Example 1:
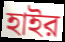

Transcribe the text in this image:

হাইর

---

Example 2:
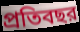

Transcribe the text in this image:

প্রতিবছর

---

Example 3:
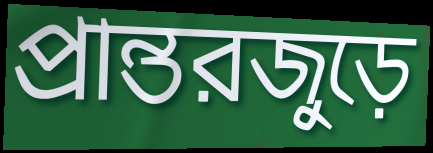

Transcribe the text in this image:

প্রান্তরজুড়ে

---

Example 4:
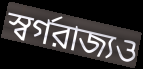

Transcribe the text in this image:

স্বর্গরাজ্যও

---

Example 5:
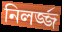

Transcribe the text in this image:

নিলর্জ্জ